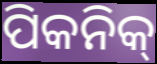
ପିକନିକ୍